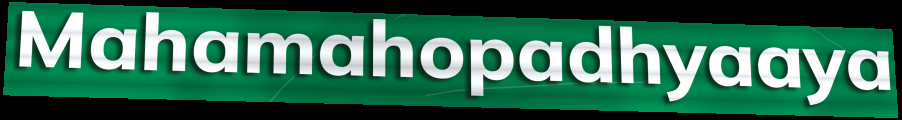
Mahamahopadhyaaya